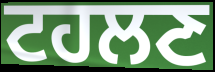
ਟਹਲਣ